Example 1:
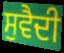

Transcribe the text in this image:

ਸੁਵੈਦੀ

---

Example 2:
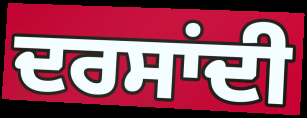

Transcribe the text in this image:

ਦਰਸਾਂਦੀ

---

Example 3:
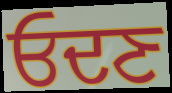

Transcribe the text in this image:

ਓਦਣ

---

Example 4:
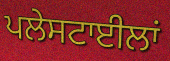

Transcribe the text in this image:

ਪਲੇਸਟਾਈਲਾਂ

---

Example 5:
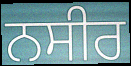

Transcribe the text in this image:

ਨਸੀਰ